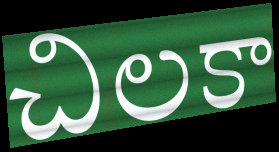
చిలకా